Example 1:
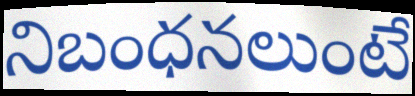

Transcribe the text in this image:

నిబంధనలుంటే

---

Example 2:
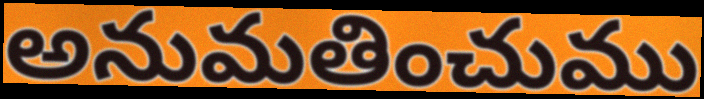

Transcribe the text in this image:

అనుమతించుము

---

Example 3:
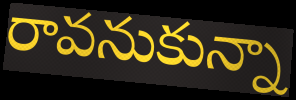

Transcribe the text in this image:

రావనుకున్నా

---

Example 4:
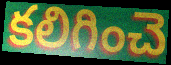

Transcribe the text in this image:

కలిగించె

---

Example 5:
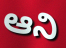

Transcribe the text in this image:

ఆని